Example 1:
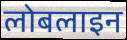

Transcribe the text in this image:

लोबलाइन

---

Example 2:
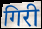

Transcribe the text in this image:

गिरी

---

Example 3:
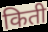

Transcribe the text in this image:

किती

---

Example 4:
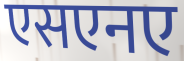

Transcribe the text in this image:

एसएनए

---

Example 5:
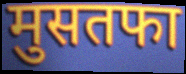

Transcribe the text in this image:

मुसतफा